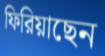
ফিরিয়াছেন